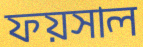
ফয়সাল